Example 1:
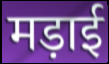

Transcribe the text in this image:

मड़ाई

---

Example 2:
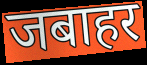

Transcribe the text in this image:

जबाहर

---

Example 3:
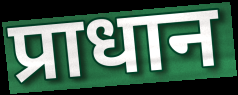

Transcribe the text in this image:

प्राधान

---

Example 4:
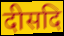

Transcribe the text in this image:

दीसदि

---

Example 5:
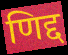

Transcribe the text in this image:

णिद्द